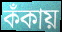
কঁকায়